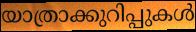
യാത്രാക്കുറിപ്പുകൾ